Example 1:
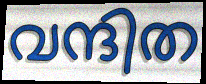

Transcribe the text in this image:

വന്ദിത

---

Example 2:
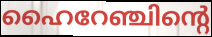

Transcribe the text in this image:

ഹൈറേഞ്ചിന്റെ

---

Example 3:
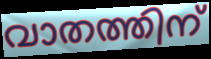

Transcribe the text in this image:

വാതത്തിന്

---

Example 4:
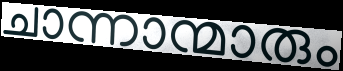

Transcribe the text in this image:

ചാന്നാന്മാരും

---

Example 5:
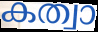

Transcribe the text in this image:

കത്വാ